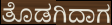
ತೊಡಗಿದಾಗ